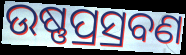
ଉଷ୍ଣପ୍ରସ୍ରବଣ